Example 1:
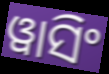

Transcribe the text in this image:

ୱାସିଂ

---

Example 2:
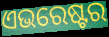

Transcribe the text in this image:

ଏଭରେଷ୍ଟର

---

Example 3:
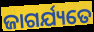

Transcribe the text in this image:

ଜାଗର୍ଯ୍ୟତେ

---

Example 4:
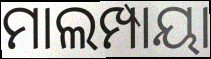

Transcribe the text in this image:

ମାଲମ୍ପାୟା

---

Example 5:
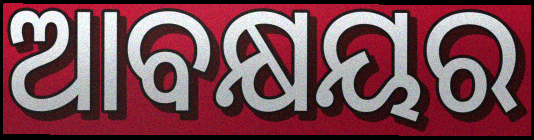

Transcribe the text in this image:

ଆବକ୍ଷୟର